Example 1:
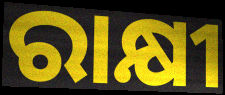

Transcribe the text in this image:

ରାକ୍ଷୀ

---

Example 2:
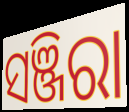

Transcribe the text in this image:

ସଞ୍ଜିରା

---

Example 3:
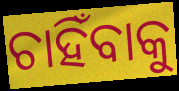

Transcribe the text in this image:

ଚାହିଁବାକୁ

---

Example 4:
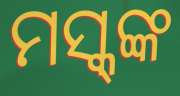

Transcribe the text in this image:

ମସ୍କ୍‌ଙ୍କ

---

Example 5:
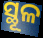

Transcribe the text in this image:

ସ୍ଥୂଳ